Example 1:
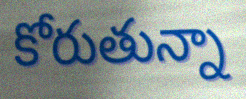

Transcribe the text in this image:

కోరుతున్నా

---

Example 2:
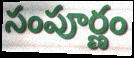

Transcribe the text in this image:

సంపూర్ణం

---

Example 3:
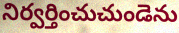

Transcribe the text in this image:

నిర్వర్తించుచుండెను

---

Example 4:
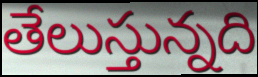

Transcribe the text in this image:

తేలుస్తున్నది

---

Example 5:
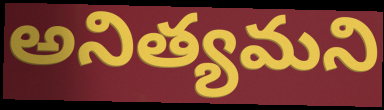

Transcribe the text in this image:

అనిత్యమని